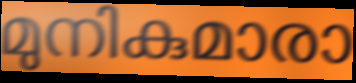
മുനികുമാരാ